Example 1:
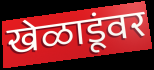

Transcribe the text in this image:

खेळाडूंवर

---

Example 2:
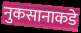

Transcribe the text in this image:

नुकसानाकडे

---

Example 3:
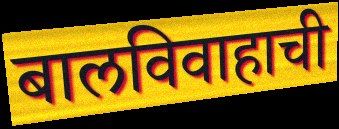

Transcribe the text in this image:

बालविवाहाची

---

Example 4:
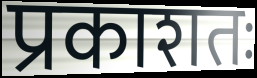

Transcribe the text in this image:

प्रकाशतः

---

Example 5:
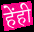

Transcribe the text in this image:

हेंही